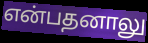
என்பதனாலு